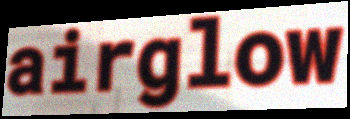
airglow